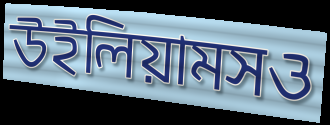
উইলিয়ামসও